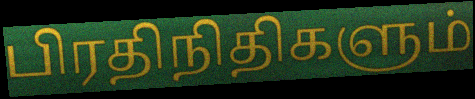
பிரதிநிதிகளும்